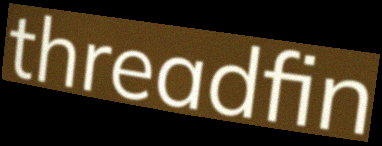
threadfin